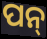
ପନ୍